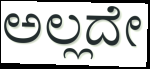
ಅಲ್ಲದೇ